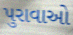
પુરાવાઓ